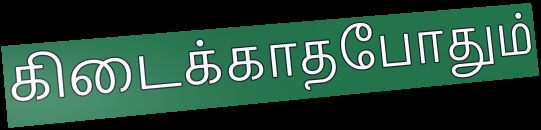
கிடைக்காதபோதும்